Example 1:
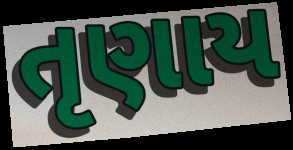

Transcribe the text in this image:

તૃણાય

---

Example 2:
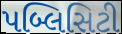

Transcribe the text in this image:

પબ્લિસિટી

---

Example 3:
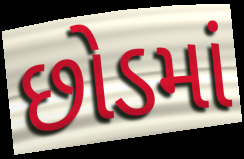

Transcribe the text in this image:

છોડમાં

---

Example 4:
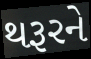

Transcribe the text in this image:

થરૂરને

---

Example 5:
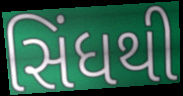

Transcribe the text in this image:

સિંધથી